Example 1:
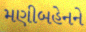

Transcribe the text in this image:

મણીબહેનને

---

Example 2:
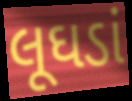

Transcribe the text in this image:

લૂઘડાં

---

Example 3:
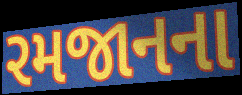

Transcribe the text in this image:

રમજાનના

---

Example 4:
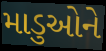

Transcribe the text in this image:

માડુઓને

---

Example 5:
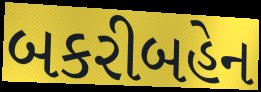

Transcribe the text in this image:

બકરીબહેન